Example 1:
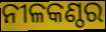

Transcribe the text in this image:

ନୀଳକଣ୍ଠର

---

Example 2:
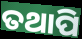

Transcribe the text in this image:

ତଥାପି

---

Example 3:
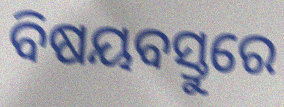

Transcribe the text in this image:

ବିଷୟବସ୍ତୁରେ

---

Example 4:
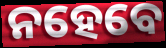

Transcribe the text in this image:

ନହେବେ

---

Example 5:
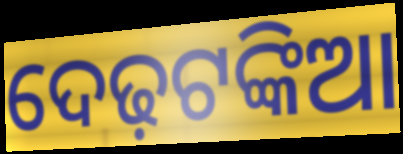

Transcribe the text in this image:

ଦେଢ଼ଟଙ୍କିଆ